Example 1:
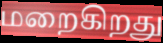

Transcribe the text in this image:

மறைகிறது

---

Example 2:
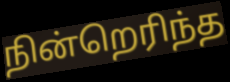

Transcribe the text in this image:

நின்றெரிந்த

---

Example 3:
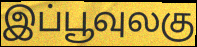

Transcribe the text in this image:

இப்பூவுலகு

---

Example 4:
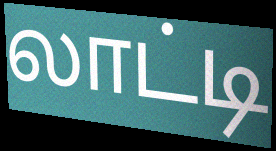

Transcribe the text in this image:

லாட்டி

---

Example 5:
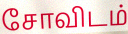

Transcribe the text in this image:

சோவிடம்